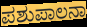
ಪಶುಪಾಲನಾ